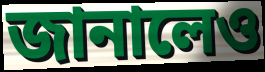
জানালেও